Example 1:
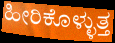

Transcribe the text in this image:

ಹೀರಿಕೊಳ್ಳುತ್ತ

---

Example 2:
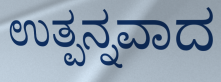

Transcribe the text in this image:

ಉತ್ಪನ್ನವಾದ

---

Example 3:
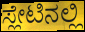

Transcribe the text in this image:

ಸ್ಲೇಟಿನಲ್ಲಿ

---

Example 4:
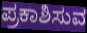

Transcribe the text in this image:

ಪ್ರಕಾಶಿಸುವ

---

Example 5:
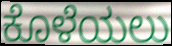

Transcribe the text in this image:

ಕೊಳೆಯಲು